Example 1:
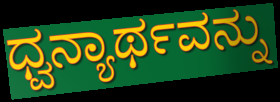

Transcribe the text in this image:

ಧ್ವನ್ಯಾರ್ಥವನ್ನು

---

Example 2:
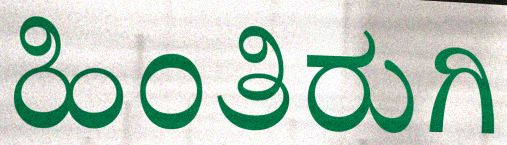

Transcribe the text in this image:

ಹಿಂತಿರುಗಿ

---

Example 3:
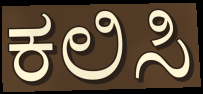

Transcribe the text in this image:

ಕಲಿಸಿ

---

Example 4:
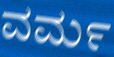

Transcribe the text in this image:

ವರ್ಮ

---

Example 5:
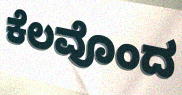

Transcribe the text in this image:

ಕೆಲವೊಂದ